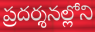
ప్రదర్శనల్లోని